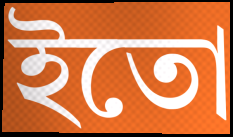
ইতো